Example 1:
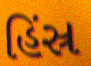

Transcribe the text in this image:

હિંસ્ર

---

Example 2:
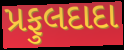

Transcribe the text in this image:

પ્રફુલદાદા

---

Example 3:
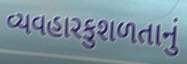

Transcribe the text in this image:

વ્યવહારકુશળતાનું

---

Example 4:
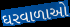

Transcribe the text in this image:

ઘરવાળાઓ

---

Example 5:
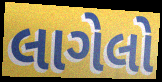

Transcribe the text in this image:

લાગેલો